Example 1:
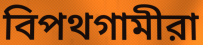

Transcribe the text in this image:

বিপথগামীরা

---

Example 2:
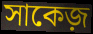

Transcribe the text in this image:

সাকেজ়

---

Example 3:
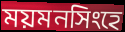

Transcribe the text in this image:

ময়মনসিংহে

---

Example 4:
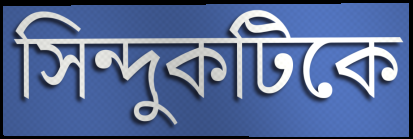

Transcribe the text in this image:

সিন্দুকটিকে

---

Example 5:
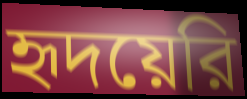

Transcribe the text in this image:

হৃদয়েরি